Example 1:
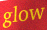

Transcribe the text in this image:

glow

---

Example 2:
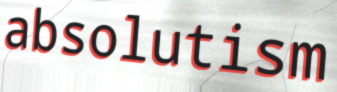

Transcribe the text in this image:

absolutism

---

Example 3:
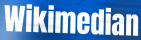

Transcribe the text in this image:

Wikimedian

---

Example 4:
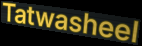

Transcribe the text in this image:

Tatwasheel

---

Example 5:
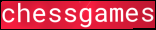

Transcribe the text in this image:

chessgames